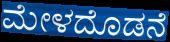
ಮೇಳದೊಡನೆ